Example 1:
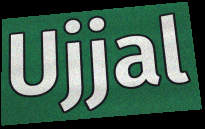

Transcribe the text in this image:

Ujjal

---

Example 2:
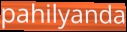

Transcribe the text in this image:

pahilyanda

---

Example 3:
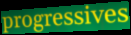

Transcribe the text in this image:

progressives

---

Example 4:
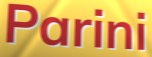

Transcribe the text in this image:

Parini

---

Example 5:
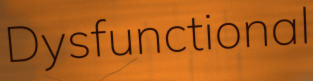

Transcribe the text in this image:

Dysfunctional